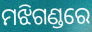
ମଝିଗଣ୍ଡରେ